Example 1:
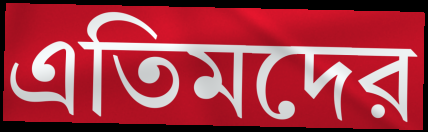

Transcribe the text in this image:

এতিমদের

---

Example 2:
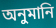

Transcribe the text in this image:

অনুমানি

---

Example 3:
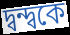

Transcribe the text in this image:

দ্বন্দ্বকে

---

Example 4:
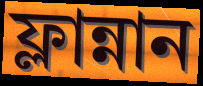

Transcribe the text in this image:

ফ্লান্নান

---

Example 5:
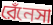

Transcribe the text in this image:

রেঁনেসা